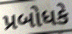
પ્રબોધકે